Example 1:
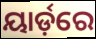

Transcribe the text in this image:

ୟାର୍ଡ଼ରେ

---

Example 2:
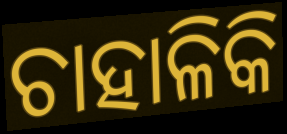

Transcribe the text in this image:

ଚାହାଳିକି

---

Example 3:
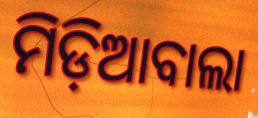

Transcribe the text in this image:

ମିଡ଼ିଆବାଲା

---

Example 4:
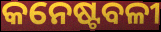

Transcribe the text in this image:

କନେଷ୍ଟବଳୀ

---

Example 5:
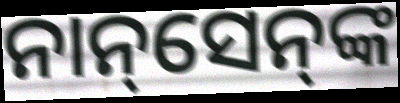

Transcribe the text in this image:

ନାନ୍‌ସେନ୍‌ଙ୍କ